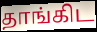
தாங்கிட